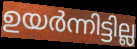
ഉയർന്നിട്ടില്ല